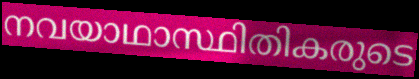
നവയാഥാസ്ഥിതികരുടെ